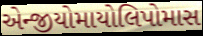
એન્જીયોમાયોલિપોમાસ